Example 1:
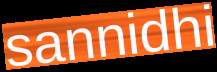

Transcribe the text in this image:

sannidhi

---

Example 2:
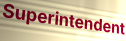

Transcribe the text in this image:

Superintendent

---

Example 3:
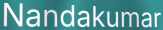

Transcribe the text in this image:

Nandakumar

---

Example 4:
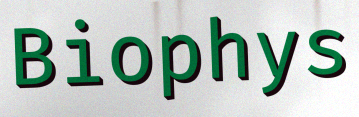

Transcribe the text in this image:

Biophys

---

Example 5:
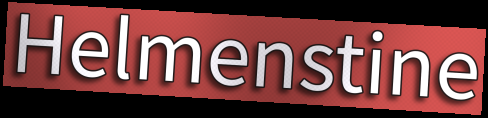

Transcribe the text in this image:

Helmenstine